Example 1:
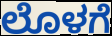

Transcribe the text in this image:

ಲೊಳಗೆ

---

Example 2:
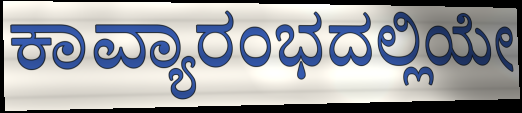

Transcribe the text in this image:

ಕಾವ್ಯಾರಂಭದಲ್ಲಿಯೇ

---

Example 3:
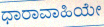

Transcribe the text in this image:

ಧಾರಾವಾಹಿಯೇ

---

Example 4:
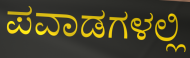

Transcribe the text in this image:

ಪವಾಡಗಳಲ್ಲಿ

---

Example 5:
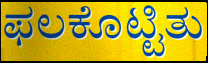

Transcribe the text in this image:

ಫಲಕೊಟ್ಟಿತು